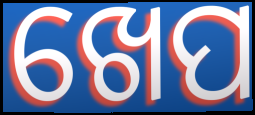
ଖେପ